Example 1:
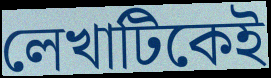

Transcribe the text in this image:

লেখাটিকেই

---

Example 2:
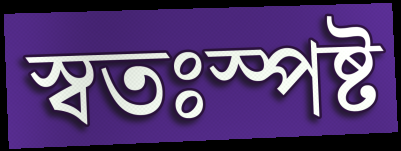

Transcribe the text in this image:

স্বতঃস্পষ্ট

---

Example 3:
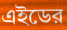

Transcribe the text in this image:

এইডের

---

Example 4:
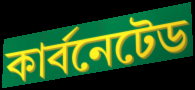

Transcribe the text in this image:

কার্বনেটেড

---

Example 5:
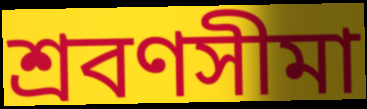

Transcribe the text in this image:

শ্রবণসীমা